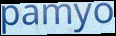
pamyo